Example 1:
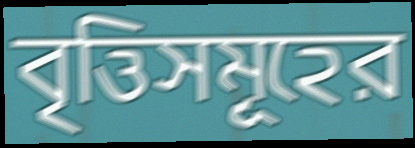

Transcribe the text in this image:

বৃত্তিসমূহের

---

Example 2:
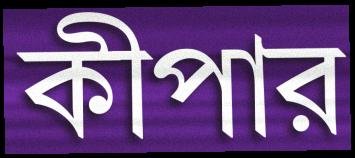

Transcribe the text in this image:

কীপার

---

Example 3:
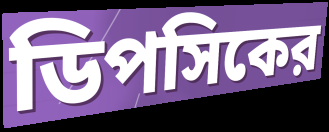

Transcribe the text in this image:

ডিপসিকের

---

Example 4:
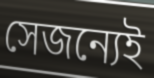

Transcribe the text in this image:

সেজন্যেই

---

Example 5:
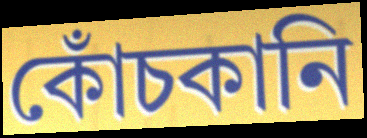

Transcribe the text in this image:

কোঁচকানি